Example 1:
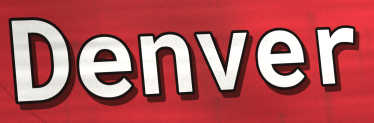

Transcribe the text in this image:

Denver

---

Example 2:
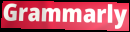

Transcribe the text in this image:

Grammarly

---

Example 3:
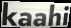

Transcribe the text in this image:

kaahi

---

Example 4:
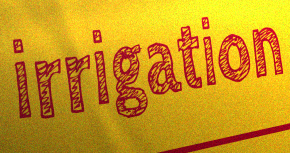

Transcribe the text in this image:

irrigation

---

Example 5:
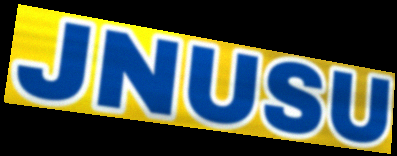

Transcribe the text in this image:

JNUSU